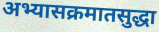
अभ्यासक्रमातसुद्धा